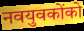
नवयुवकोंको